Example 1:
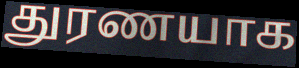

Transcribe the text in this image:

துரணயாக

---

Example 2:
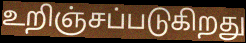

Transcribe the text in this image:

உறிஞ்சப்படுகிறது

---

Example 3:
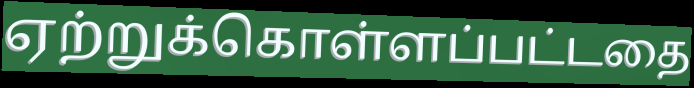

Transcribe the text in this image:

ஏற்றுக்கொள்ளப்பட்டதை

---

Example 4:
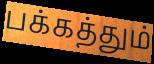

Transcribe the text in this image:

பக்கத்தும்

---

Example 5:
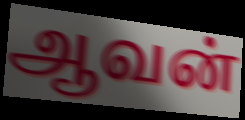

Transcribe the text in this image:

ஆவன்